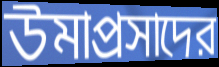
উমাপ্রসাদের